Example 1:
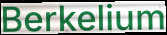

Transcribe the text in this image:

Berkelium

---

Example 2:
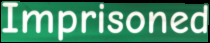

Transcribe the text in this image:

Imprisoned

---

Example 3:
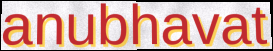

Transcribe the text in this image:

anubhavat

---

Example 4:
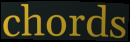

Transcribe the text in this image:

chords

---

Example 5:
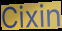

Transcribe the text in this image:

Cixin